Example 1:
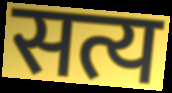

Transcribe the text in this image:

सत्य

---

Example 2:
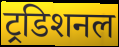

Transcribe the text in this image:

ट्रडिशनल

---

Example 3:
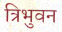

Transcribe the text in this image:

त्रिभुवन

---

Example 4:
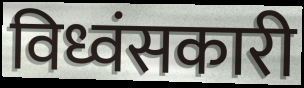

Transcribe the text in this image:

विध्वंसकारी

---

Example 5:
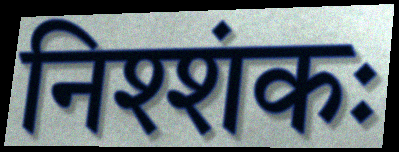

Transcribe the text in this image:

निश्शंकः